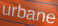
urbane